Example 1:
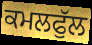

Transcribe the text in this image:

ਕਮਲਫੁੱਲ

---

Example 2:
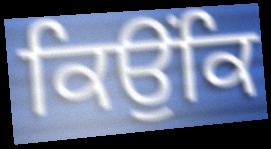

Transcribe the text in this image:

ਕਿਉਂਕਿ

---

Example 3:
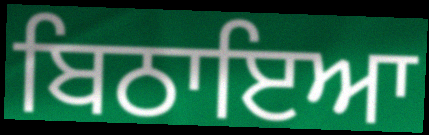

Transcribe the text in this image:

ਬਿਠਾਇਆ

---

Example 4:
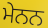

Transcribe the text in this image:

ਮੇਨਨ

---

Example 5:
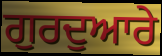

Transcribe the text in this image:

ਗੁਰਦੁਆਰੇ